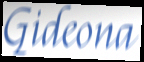
Gideona